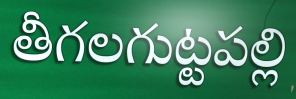
తీగలగుట్టపల్లి